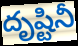
దృష్టినీ